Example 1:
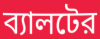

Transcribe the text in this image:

ব্যালটের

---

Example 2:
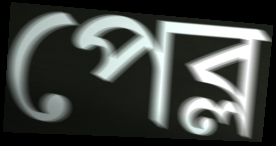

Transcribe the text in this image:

পেব্ল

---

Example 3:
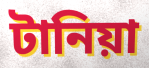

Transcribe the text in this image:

টানিয়া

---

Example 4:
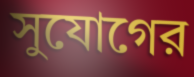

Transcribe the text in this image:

সুযোগের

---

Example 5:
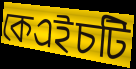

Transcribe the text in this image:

কেএইচটি